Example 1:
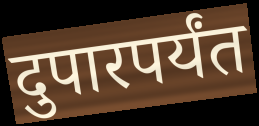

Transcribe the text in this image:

दुपारपर्यंत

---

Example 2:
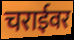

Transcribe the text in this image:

चराईवर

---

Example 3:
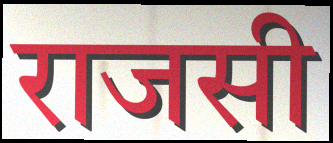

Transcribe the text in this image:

राजसी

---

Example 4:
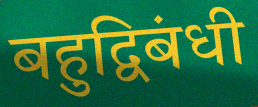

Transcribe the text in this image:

बहुद्विबंधी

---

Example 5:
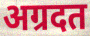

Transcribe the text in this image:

अग्रदत